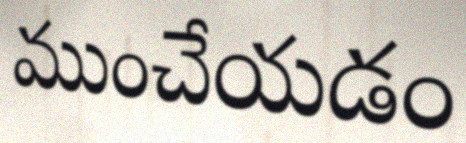
ముంచేయడం